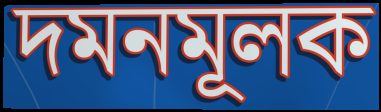
দমনমূলক